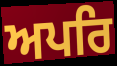
ਅਪਰਿ